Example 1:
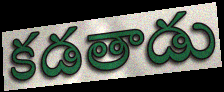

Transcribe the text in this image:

కడతాడు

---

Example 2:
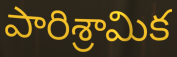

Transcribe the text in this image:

పారిశ్రామిక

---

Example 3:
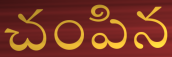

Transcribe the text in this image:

చంపిన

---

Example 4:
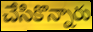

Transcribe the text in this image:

చేసికొన్నారు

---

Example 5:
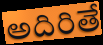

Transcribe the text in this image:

అదిరితే